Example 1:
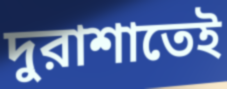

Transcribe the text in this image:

দুরাশাতেই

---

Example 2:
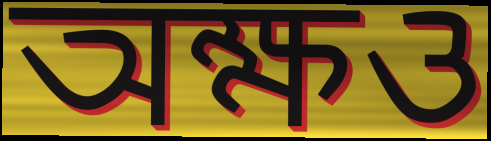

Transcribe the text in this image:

অক্ষও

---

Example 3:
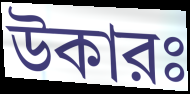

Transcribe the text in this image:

উকারঃ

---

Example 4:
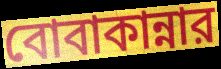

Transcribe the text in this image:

বোবাকান্নার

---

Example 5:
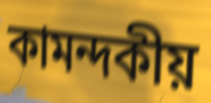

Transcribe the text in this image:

কামন্দকীয়